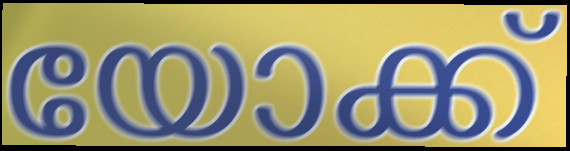
യോക്ക്